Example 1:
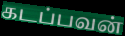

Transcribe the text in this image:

கடப்பவன்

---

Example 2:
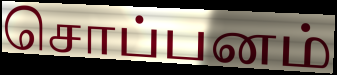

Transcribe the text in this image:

சொப்பனம்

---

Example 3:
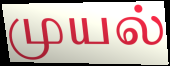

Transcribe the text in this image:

முயல்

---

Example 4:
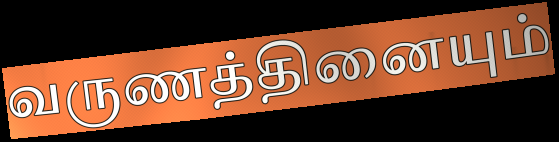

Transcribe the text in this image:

வருணத்தினையும்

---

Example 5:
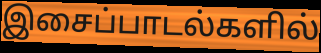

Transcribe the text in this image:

இசைப்பாடல்களில்